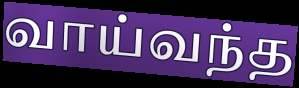
வாய்வந்த